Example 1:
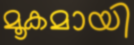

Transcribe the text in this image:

മൂകമായി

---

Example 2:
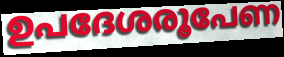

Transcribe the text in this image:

ഉപദേശരൂപേണ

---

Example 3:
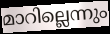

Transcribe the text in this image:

മാറില്ലെന്നും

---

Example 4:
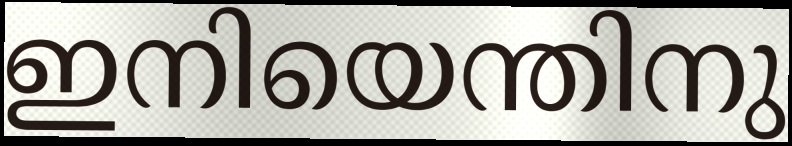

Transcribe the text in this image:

ഇനിയെന്തിനു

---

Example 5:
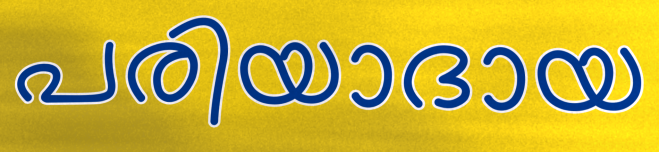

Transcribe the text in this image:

പരിയാദായ